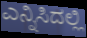
ಎನ್ನಿಸಿದಲ್ಲಿ